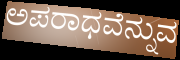
ಅಪರಾಧವೆನ್ನುವ